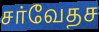
சர்வேதச